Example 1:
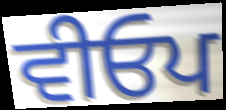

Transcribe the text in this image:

ਵੀਓਪ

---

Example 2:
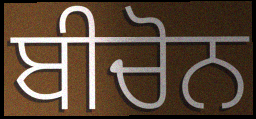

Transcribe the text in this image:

ਬੀਚੋਨ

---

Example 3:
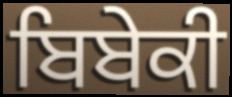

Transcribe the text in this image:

ਬਿਬੇਕੀ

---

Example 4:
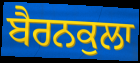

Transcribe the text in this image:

ਬੈਰਨਕੁਲਾ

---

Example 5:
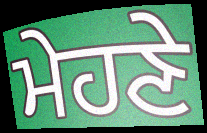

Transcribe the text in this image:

ਮੇਹਣੇ